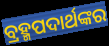
ବ୍ରହ୍ମପଦାର୍ଥଙ୍କର